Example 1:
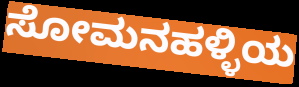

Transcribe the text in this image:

ಸೋಮನಹಳ್ಳಿಯ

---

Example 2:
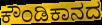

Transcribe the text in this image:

ಕೌಂಡಿಕಾನದ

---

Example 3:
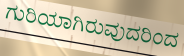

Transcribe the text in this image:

ಗುರಿಯಾಗಿರುವುದರಿಂದ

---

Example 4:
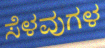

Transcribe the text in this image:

ಸೆಳವುಗಳ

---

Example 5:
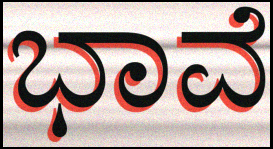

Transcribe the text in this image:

ಭಾವೆ